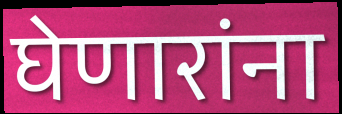
घेणारांना